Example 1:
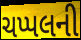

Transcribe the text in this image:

ચપ્પલની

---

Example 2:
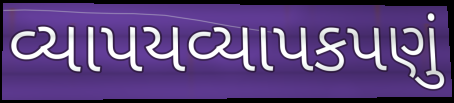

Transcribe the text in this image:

વ્યાપયવ્યાપકપણું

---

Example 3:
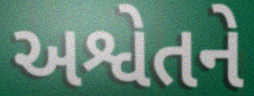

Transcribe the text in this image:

અશ્વેતને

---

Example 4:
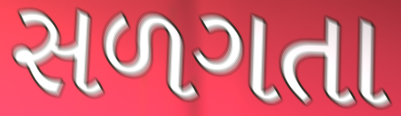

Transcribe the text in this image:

સળગતા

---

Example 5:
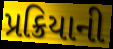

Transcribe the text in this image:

પ્રક્રિયાની